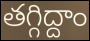
తగ్గిద్దాం